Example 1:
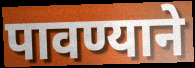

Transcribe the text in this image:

पावण्याने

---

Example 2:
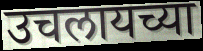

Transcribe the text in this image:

उचलायच्या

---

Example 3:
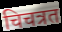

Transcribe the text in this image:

चिचत्रत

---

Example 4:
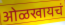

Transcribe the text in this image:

ओळखायचं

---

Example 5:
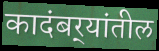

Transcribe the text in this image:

कादंबर्यांतील